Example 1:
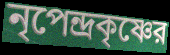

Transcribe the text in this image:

নৃপেন্দ্রকৃষ্ণের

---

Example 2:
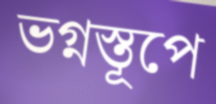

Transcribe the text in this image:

ভগ্নস্তূপে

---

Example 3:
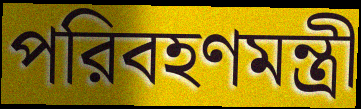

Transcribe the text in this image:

পরিবহণমন্ত্রী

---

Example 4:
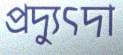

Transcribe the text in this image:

প্রদ্যুৎদা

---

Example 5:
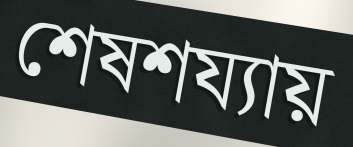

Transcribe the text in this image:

শেষশয্যায়